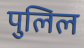
पुलिल